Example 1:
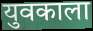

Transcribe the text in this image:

युवकाला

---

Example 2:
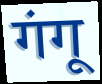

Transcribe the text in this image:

गंगू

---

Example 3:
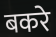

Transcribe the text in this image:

बकरे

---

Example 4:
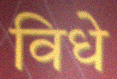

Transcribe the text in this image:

विधे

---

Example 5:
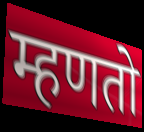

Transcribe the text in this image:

म्हणतो